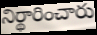
నిర్థారించారు